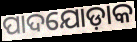
ପାଦଯୋଡ଼ାକ